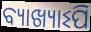
ବ୍ୟାଖ୍ୟାଽପି